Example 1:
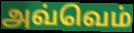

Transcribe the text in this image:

அவ்வெம்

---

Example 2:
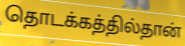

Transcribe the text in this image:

தொடக்கத்தில்தான்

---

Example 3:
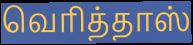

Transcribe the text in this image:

வெரித்தாஸ்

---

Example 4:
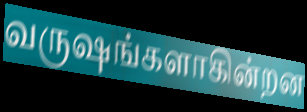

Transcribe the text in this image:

வருஷங்களாகின்றன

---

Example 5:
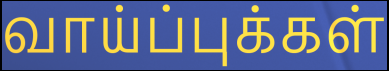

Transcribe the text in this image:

வாய்ப்புக்கள்